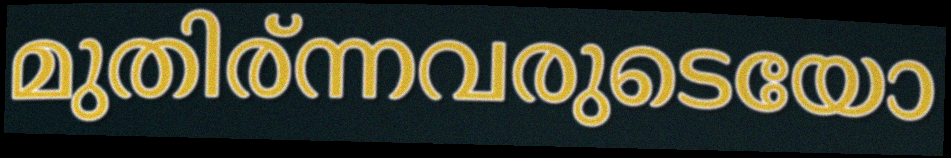
മുതിര്ന്നവരുടെയോ